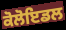
ਕੋਲੋਇਡਲ